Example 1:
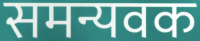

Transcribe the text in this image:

समन्यवक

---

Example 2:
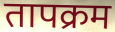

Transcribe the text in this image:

तापक्रम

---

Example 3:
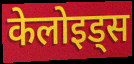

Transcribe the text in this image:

केलोइड्स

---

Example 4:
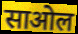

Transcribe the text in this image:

साओल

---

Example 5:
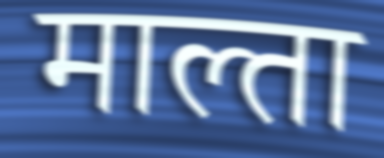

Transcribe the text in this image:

माल्ता